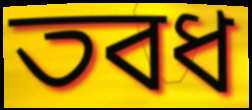
তবধ